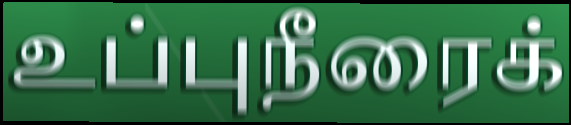
உப்புநீரைக்